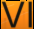
VI